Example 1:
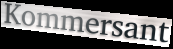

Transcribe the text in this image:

Kommersant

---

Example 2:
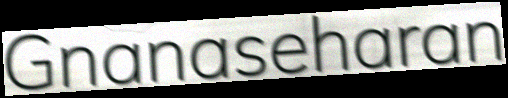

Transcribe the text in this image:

Gnanaseharan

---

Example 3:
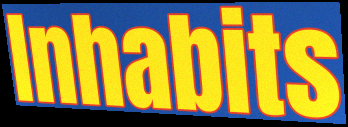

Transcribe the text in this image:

Inhabits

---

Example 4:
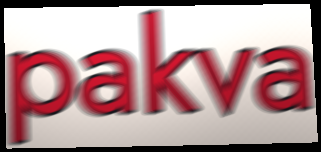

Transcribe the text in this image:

pakva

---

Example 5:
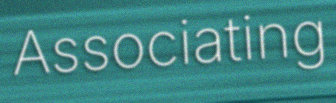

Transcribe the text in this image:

Associating